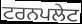
ਟਰਨਪਲੇਟ